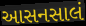
આસનસાલં